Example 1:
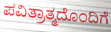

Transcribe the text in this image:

ಪವಿತ್ರಾತ್ಮದೊಂದಿಗೆ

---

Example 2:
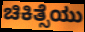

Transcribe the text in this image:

ಚಿಕಿತ್ಸೆಯು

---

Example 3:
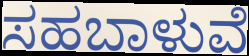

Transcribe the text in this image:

ಸಹಬಾಳುವೆ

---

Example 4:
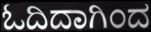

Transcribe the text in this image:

ಓದಿದಾಗಿಂದ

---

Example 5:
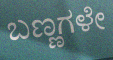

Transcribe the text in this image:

ಬಣ್ಣಗಳೇ